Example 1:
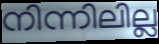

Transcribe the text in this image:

നിന്നിലില്ല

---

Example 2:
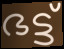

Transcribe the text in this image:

ഭട്ട്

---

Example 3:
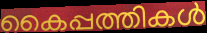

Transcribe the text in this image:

കൈപ്പത്തികൾ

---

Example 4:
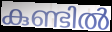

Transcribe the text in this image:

കുണ്ടിൽ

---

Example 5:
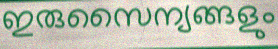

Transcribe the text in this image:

ഇരുസൈന്യങ്ങളും